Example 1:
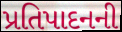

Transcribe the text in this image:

પ્રતિપાદનની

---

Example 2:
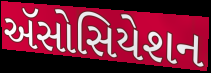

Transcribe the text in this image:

ઍસોસિયેશન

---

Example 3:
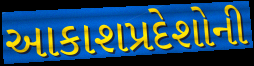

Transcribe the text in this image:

આકાશપ્રદેશોની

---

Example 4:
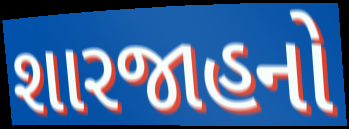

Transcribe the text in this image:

શારજાહનો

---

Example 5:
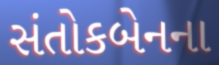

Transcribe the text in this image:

સંતોકબેનના